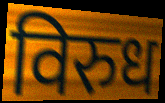
विरुध